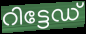
റിട്ടേഡ്